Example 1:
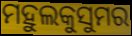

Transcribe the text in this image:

ମହୁଲକୁସୁମର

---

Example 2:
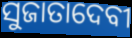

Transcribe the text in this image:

ସୁଜାତାଦେବୀ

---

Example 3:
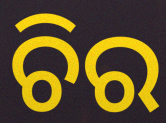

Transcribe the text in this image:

ଚିର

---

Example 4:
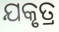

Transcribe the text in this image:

ଯକୃତ୍ର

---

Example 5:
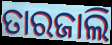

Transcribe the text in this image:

ତାରଜାଲି